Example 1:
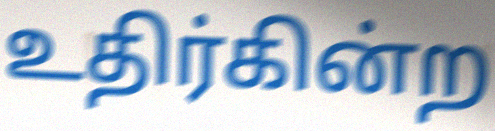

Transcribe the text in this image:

உதிர்கின்ற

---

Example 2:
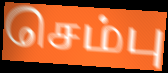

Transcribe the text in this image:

செம்பு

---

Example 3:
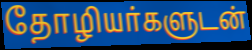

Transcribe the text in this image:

தோழியர்களுடன்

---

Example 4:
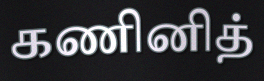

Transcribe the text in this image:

கணினித்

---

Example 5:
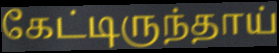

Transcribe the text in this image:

கேட்டிருந்தாய்